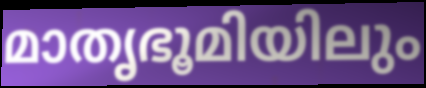
മാതൃഭൂമിയിലും